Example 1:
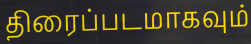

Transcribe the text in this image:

திரைப்படமாகவும்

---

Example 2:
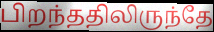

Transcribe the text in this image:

பிறந்ததிலிருந்தே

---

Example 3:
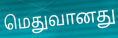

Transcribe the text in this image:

மெதுவானது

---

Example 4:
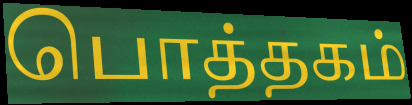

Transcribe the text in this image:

பொத்தகம்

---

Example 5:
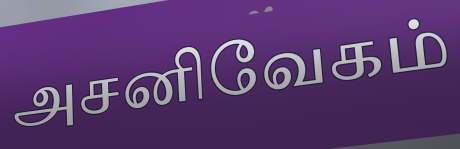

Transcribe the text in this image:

அசனிவேகம்